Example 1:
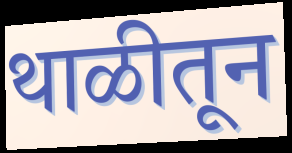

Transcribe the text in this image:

थाळीतून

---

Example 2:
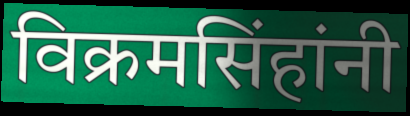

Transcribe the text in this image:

विक्रमसिंहांनी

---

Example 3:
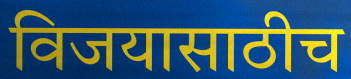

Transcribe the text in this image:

विजयासाठीच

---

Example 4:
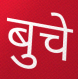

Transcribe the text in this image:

बुचे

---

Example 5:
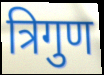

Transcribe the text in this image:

त्रिगुण